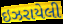
ઇઝરાયેલી